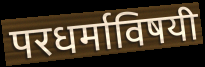
परधर्माविषयी